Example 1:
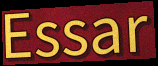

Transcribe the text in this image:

Essar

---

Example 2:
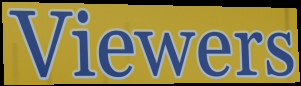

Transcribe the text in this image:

Viewers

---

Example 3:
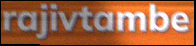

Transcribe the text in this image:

rajivtambe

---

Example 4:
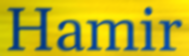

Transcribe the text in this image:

Hamir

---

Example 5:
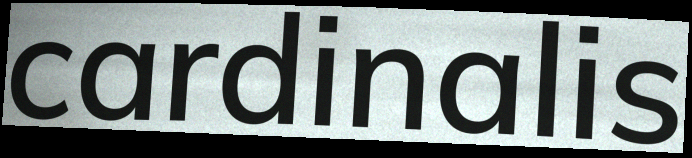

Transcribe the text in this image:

cardinalis